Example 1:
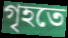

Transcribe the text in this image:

গৃহতে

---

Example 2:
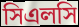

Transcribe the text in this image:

সিএলসি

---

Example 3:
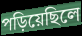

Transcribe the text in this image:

পড়িয়েছিলে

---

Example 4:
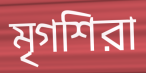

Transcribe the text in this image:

মৃগশিরা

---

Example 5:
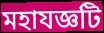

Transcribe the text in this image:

মহাযজ্ঞটি